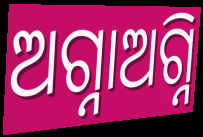
ଅଗ୍ନାଅଗ୍ନି